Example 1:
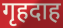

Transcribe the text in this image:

गृहदाह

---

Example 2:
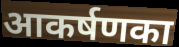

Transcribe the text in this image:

आकर्षणका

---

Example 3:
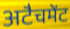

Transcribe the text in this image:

अटैचमेंट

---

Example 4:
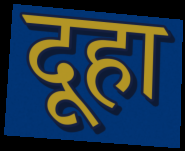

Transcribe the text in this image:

दूहा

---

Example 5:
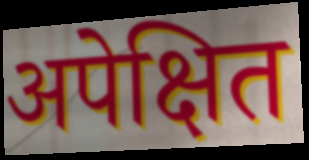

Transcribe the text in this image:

अपेक्षित